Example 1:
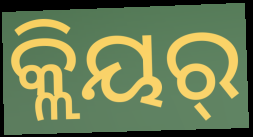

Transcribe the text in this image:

କ୍ଲିୟର୍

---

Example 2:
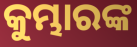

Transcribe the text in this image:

କୁମ୍ଭାରଙ୍କ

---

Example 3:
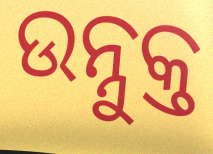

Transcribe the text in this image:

ଉନ୍ନୁକ୍ତ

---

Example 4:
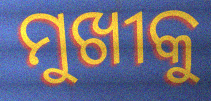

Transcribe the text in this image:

ମୁଖୀକୁ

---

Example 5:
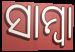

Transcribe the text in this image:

ସାମ୍ବା